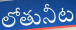
లోతునీట